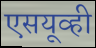
एसयूव्ही